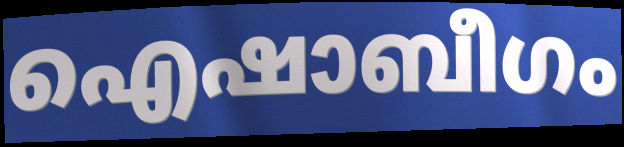
ഐഷാബീഗം